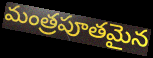
మంత్రపూతమైన